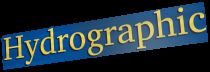
Hydrographic